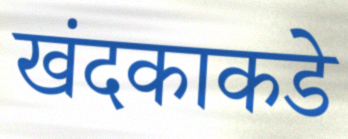
खंदकाकडे